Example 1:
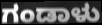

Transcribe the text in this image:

ಗಂಡಾಳು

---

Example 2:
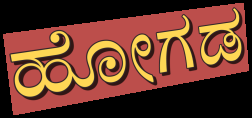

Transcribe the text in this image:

ಹೋಗಡ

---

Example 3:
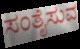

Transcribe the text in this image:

ಸಂತೈಸುವ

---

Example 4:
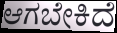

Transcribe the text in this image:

ಆಗಬೇಕಿದೆ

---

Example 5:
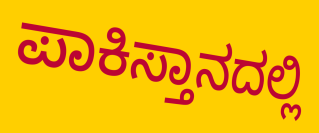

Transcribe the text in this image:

ಪಾಕಿಸ್ತಾನದಲ್ಲಿ